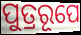
ପୁତ୍ରରୂପେ